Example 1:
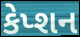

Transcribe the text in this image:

કેપ્શન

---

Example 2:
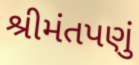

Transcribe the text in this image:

શ્રીમંતપણું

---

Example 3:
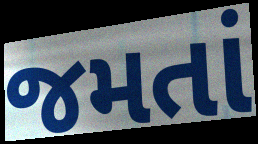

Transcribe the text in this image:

જમતાં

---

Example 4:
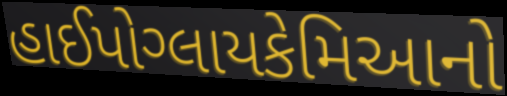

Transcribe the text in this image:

હાઈપોગ્લાયકેમિઆનો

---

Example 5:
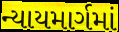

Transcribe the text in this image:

ન્યાયમાર્ગમાં